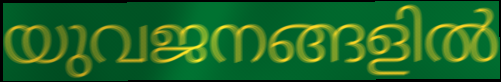
യുവജനങ്ങളിൽ